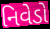
નિવેડો